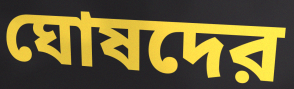
ঘোষদের